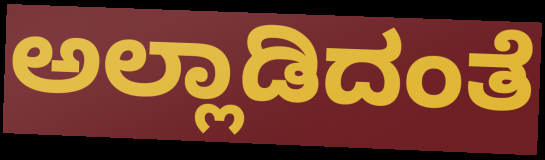
ಅಲ್ಲಾಡಿದಂತೆ